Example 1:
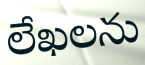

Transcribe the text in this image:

లేఖలను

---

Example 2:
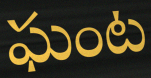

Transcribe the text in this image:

ఘంట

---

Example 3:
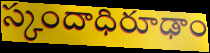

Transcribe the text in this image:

స్కందాధిరూఢాం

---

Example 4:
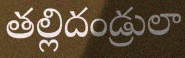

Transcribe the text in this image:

తల్లిదండ్రులా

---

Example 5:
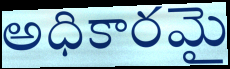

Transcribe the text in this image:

అధికారమై